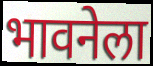
भावनेला